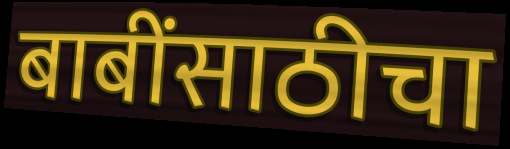
बाबींसाठीचा